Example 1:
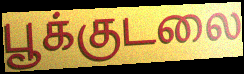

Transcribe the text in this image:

பூக்குடலை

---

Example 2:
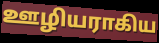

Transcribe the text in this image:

ஊழியராகிய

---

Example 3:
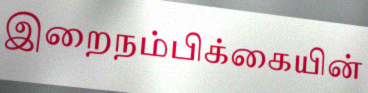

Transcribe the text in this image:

இறைநம்பிக்கையின்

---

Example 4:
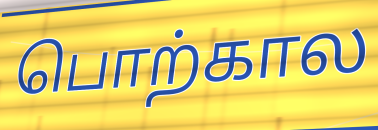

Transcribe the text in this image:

பொற்கால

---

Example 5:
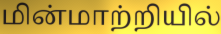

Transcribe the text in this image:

மின்மாற்றியில்